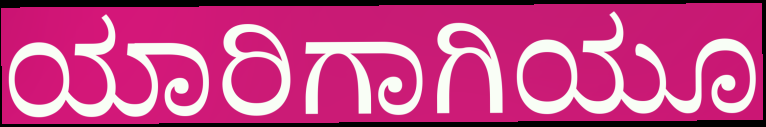
ಯಾರಿಗಾಗಿಯೂ